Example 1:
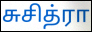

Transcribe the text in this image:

சுசித்ரா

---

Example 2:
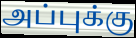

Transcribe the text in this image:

அப்புக்கு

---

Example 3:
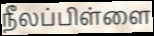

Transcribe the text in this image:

நீலப்பிள்ளை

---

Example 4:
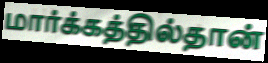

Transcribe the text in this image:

மார்க்கத்தில்தான்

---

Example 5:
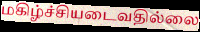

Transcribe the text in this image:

மகிழ்ச்சியடைவதில்லை